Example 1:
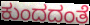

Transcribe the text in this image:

ಕುಂದದಂತೆ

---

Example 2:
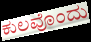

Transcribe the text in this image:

ಕುಲವೊಂದು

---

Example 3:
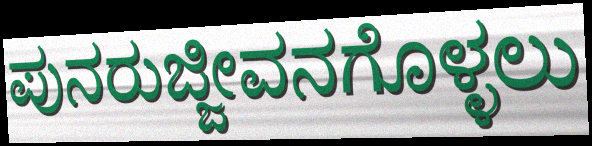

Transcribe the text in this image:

ಪುನರುಜ್ಜೀವನಗೊಳ್ಳಲು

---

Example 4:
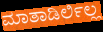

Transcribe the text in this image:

ಮಾತಾಡಿರ್ಲಿಲ್ಲ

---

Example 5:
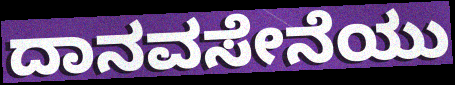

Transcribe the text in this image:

ದಾನವಸೇನೆಯು